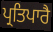
ਪ੍ਰਤਿਪਾਰੈ